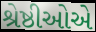
શ્રેષ્ઠીઓએ